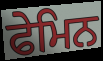
ਫੇਮਿਨ